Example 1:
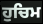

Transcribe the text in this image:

ਹੁਚਿਮ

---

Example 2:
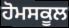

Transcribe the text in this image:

ਹੋਮਸਕੂਲ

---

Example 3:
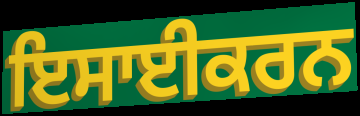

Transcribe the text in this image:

ਇਸਾਈਕਰਨ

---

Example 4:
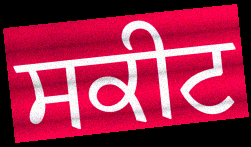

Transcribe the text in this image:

ਸਕੀਟ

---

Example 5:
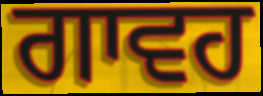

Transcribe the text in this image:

ਗਾਵਹ